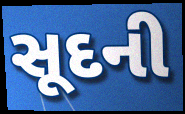
સૂદની